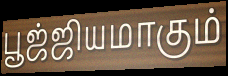
பூஜ்ஜியமாகும்